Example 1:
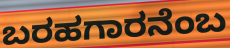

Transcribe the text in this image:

ಬರಹಗಾರನೆಂಬ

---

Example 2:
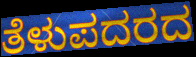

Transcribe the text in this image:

ತೆಳುಪದರದ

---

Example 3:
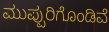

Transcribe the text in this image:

ಮುಪ್ಪುರಿಗೊಂಡಿವೆ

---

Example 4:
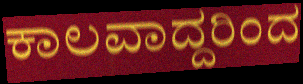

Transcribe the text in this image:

ಕಾಲವಾದ್ದರಿಂದ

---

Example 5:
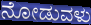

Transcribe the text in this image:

ನೋಡುವಳು